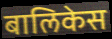
बालिकेस